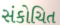
સંકોચિત